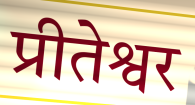
प्रीतेश्वर